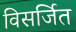
विसर्जित